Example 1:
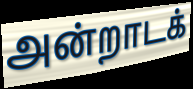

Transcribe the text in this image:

அன்றாடக்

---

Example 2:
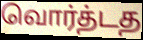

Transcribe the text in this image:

வொர்த்டத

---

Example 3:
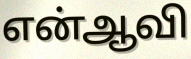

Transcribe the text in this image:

என்ஆவி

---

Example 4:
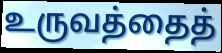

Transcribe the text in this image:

உருவத்தைத்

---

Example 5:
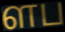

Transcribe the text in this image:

ளப